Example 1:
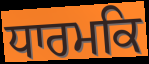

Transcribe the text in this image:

ਧਾਰਮਕਿ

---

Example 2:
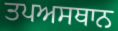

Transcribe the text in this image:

ਤਪਅਸਥਾਨ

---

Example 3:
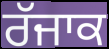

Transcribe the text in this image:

ਰੱਜਾਕ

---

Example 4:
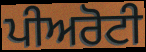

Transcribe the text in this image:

ਪੀਅਰੋਟੀ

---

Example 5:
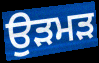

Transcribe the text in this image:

ਉੜਮੜ